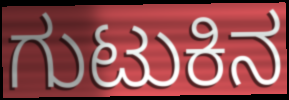
ಗುಟುಕಿನ